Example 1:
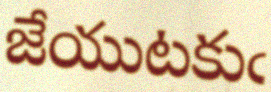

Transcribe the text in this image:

జేయుటకుఁ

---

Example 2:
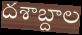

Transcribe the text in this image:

దశాబ్దాల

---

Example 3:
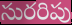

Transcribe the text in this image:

సురరిపు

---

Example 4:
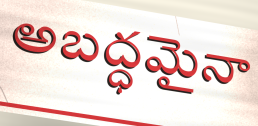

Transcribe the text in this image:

అబద్ధమైనా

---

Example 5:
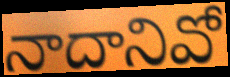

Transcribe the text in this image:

నాదానివో